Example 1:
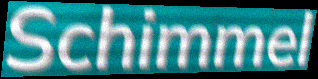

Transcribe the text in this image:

Schimmel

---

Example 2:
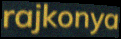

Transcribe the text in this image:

rajkonya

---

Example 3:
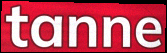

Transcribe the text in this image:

tanne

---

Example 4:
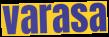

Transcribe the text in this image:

varasa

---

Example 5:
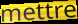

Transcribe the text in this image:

mettre